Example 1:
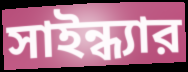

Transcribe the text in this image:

সাইন্ধ্যার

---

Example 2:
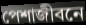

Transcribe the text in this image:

পেশাজীবনে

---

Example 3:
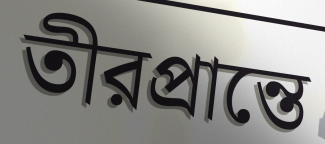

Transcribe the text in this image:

তীরপ্রান্তে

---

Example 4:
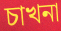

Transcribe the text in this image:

চাখনা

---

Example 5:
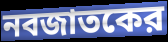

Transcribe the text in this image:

নবজাতকের